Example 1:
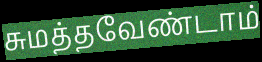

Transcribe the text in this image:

சுமத்தவேண்டாம்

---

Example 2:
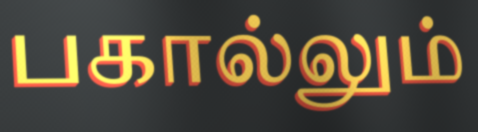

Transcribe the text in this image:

பகால்லும்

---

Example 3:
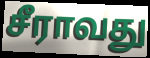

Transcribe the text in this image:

சீராவது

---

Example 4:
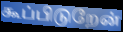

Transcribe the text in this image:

கூப்பிடுறேன்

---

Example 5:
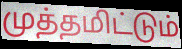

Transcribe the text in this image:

முத்தமிட்டும்